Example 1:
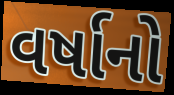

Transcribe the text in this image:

વર્ષાનો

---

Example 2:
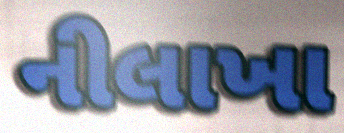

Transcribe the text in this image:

નીલાખા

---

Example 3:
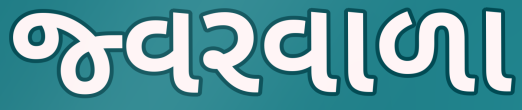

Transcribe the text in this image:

જ્વરવાળા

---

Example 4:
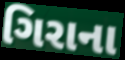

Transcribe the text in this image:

ગિરાના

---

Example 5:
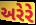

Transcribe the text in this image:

અરેરે